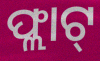
ଫ୍ଲାଟ୍